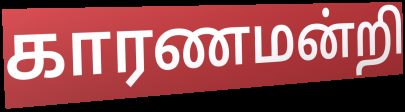
காரணமன்றி